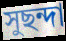
সুছন্দা